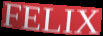
FELIX